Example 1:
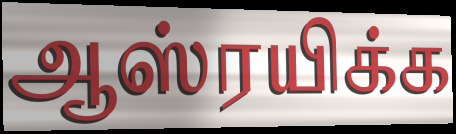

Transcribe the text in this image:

ஆஸ்ரயிக்க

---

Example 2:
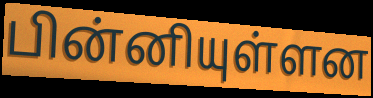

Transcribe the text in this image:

பின்னியுள்ளன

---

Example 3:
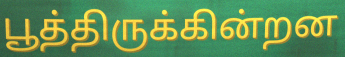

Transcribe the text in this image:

பூத்திருக்கின்றன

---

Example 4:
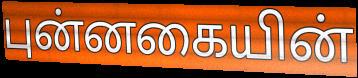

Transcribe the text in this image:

புன்னகையின்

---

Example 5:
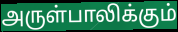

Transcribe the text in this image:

அருள்பாலிக்கும்